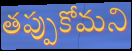
తప్పుకోమని